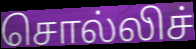
சொல்லிச்